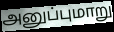
அனுப்புமாறு